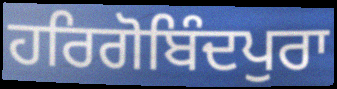
ਹਰਿਗੋਬਿੰਦਪੁਰਾ